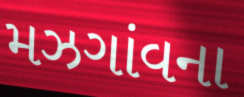
મઝગાંવના